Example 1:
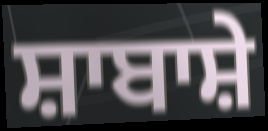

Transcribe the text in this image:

ਸ਼ਾਬਾਸ਼ੇ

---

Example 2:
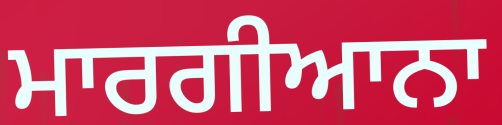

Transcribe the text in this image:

ਮਾਰਗੀਆਨਾ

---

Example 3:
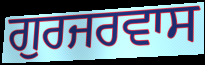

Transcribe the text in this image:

ਗੁਰਜਰਵਾਸ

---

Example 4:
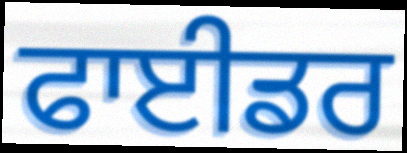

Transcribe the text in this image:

ਫਾਈਡਰ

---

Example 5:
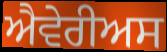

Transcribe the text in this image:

ਐਵੇਰੀਅਸ